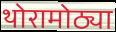
थोरामोठ्या